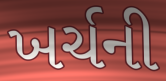
ખર્ચની